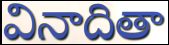
వినాదితా